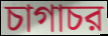
চাগাচর